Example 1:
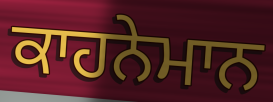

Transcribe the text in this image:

ਕਾਹਨੇਮਾਨ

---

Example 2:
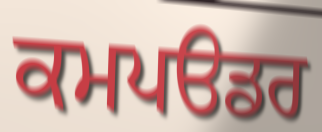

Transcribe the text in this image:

ਕਮਪੳਡਰ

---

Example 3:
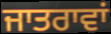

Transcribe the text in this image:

ਜਾਤਰਾਵਾਂ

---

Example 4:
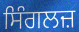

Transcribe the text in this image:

ਸਿੰਗਲਜ਼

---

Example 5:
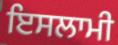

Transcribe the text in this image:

ਇਸਲਾਮੀ